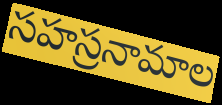
సహస్రనామాల